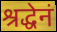
श्रद्धेनं